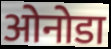
ओनोडा